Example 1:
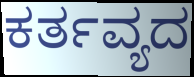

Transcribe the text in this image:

ಕರ್ತವ್ಯದ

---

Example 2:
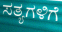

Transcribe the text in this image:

ಸತ್ಯಗಳಿಗೆ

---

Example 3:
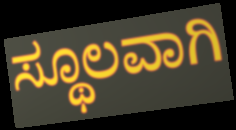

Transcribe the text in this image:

ಸ್ಥೂಲವಾಗಿ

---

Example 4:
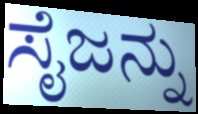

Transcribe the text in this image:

ಸೈಜನ್ನು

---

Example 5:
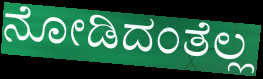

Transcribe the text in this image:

ನೋಡಿದಂತೆಲ್ಲ